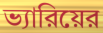
ভ্যারিয়ের